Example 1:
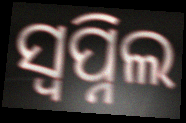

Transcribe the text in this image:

ସ୍ୱପ୍ନିଲ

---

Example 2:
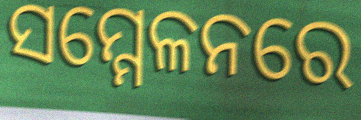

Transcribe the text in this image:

ସମ୍ମେଳନରେ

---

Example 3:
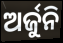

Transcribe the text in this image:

ଅର୍ଜୁନି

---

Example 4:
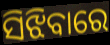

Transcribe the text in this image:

ସିଝିବାରେ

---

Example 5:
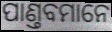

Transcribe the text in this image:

ପାଣ୍ତବମାନେ